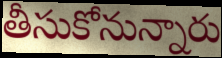
తీసుకోనున్నారు